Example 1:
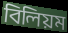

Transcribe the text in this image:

বিলিয়ম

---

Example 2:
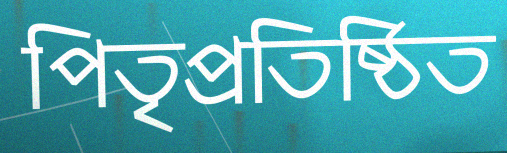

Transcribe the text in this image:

পিতৃপ্রতিষ্ঠিত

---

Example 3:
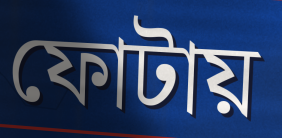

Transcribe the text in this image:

ফোটায়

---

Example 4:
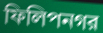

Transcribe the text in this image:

ফিলিপনগর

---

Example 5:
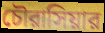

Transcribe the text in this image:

চৌরাসিয়ার